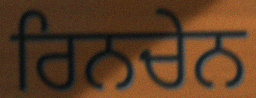
ਰਿਨਚੇਨ